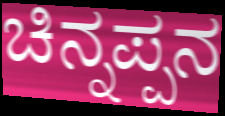
ಚಿನ್ನಪ್ಪನ